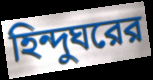
হিন্দুঘরের